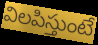
విలపిస్తుంటే